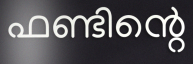
ഫണ്ടിന്റെ